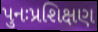
પુનઃપ્રશિક્ષણ